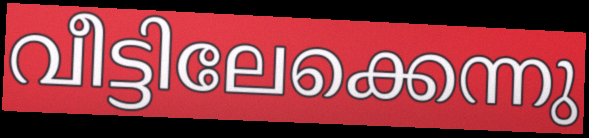
വീട്ടിലേക്കെന്നു